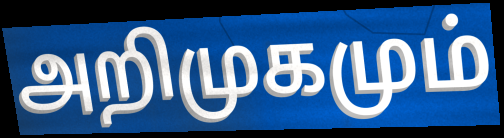
அறிமுகமும்